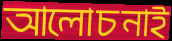
আলোচনাই